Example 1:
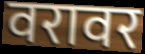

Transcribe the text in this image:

वरावर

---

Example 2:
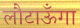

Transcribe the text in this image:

लौटाऊँगा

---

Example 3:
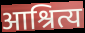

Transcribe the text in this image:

आश्रित्य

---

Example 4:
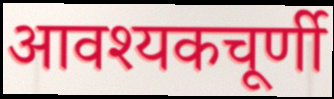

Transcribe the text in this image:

आवश्यकचूर्णी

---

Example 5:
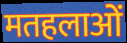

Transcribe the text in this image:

मतहलाओं